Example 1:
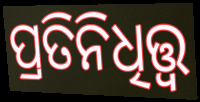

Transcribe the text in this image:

ପ୍ରତିନିଧିତ୍ତ୍ୱ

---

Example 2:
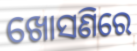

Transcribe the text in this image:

ଖୋସଣିରେ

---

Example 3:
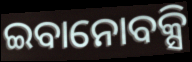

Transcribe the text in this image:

ଇବାନୋବକ୍ସି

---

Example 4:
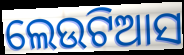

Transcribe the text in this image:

ଲେଉଟିଆସ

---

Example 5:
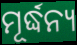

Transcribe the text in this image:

ମୂର୍ଦ୍ଧନ୍ୟ